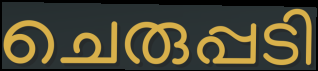
ചെരുപ്പടി